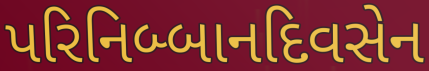
પરિનિબ્બાનદિવસેન